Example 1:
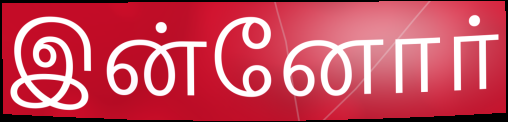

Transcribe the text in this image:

இன்னோர்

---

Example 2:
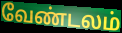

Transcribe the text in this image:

வேண்டலம்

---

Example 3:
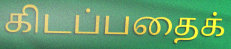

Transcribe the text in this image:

கிடப்பதைக்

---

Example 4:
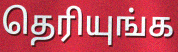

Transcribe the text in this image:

தெரியுங்க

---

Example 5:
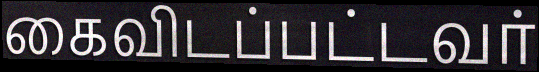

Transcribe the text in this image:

கைவிடப்பட்டவர்